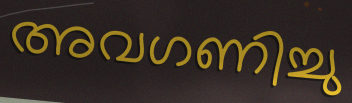
അവഗണിച്ചു